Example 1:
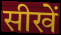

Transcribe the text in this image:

सीखें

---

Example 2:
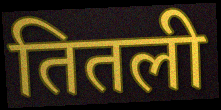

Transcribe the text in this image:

तितली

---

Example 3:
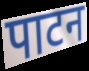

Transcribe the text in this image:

पाटन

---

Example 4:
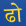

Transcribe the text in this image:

ढो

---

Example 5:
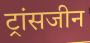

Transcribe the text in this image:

ट्रांसजीन